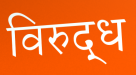
विरुद्ध